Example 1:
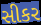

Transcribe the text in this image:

સીકર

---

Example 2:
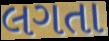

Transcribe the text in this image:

લગતા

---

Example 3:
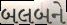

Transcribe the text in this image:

બલબને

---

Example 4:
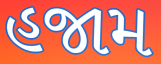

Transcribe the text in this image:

હજામ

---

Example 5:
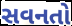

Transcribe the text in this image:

સવનતો